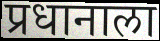
प्रधानाला